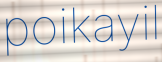
poikayil